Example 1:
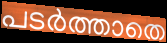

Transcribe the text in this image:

പടർത്താതെ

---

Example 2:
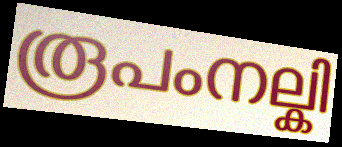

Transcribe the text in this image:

രൂപംനല്കി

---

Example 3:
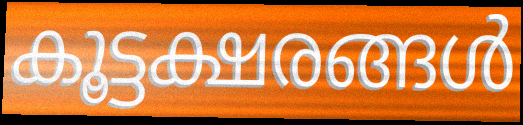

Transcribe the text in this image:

കൂട്ടക്ഷരങ്ങൾ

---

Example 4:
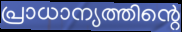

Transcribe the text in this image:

പ്രാധാന്യത്തിന്റെ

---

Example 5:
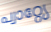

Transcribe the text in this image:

പ്വാറ്റ്യേ